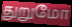
துறுமோ